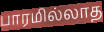
பாரமில்லாத